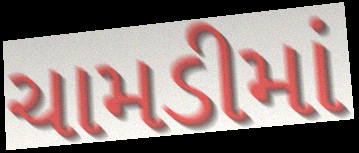
ચામડીમાં